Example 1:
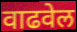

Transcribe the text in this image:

वाढवेल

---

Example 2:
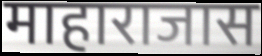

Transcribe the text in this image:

माहाराजास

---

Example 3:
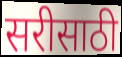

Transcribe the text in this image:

सरीसाठी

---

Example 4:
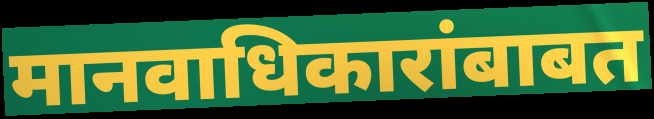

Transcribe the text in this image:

मानवाधिकारांबाबत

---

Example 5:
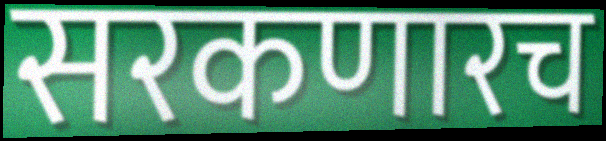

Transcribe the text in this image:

सरकणारच